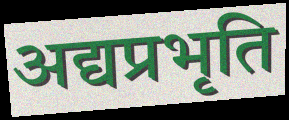
अद्यप्रभृति